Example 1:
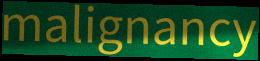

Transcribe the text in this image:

malignancy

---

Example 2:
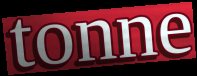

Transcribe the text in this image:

tonne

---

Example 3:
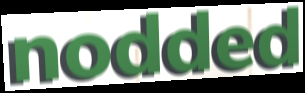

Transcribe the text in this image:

nodded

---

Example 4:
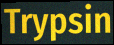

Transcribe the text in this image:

Trypsin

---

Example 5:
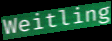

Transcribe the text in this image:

Weitling